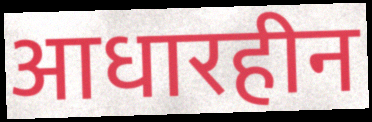
आधारहीन